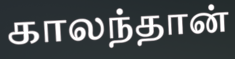
காலந்தான்